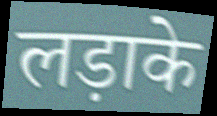
लड़ाके